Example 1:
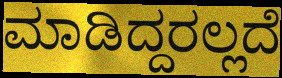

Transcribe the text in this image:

ಮಾಡಿದ್ದರಲ್ಲದೆ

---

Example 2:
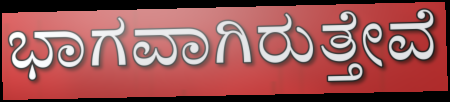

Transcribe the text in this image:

ಭಾಗವಾಗಿರುತ್ತೇವೆ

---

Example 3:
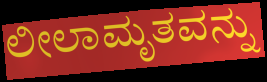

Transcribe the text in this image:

ಲೀಲಾಮೃತವನ್ನು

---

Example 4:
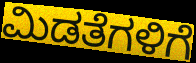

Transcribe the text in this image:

ಮಿಡತೆಗಳಿಗೆ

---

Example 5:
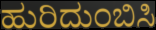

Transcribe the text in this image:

ಹುರಿದುಂಬಿಸಿ